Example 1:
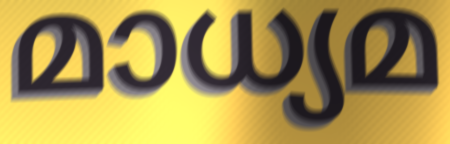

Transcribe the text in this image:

മാധ്യമ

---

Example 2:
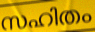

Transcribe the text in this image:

സഹിതം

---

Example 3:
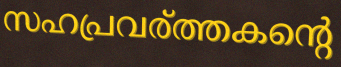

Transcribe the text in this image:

സഹപ്രവര്ത്തകന്റെ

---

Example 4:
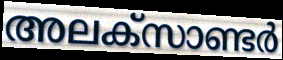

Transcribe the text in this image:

അലക്സാണ്ടർ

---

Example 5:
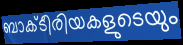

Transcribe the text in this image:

ബാക്ടീരിയകളുടെയും